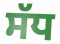
ਸੱਧ